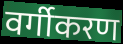
वर्गीकरण